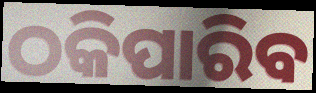
ଠକିପାରିବ